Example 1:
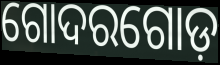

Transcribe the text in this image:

ଗୋଦରଗୋଡ଼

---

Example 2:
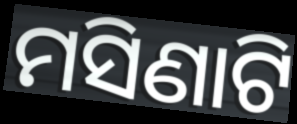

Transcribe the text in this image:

ମସିଣାଟି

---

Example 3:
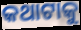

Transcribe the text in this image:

କଥାଟାକୁ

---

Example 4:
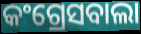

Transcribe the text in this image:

କଂଗ୍ରେସବାଲା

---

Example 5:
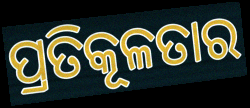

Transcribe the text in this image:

ପ୍ରତିକୂଳତାର